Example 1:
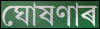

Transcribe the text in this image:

ঘোষণাৰ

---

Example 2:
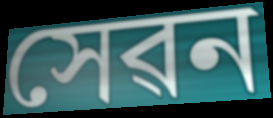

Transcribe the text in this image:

সেৱন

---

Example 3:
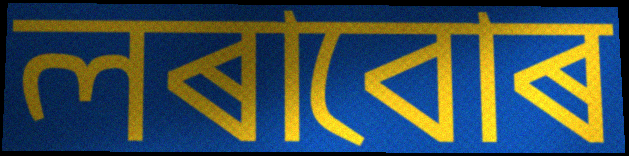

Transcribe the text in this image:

লৰাবোৰ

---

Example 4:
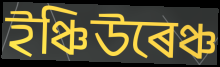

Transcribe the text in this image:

ইঞ্চিউৰেঞ্চ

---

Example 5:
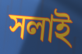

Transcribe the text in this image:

সলাই